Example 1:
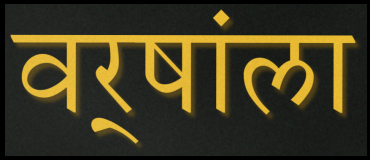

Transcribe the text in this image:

वर्षांला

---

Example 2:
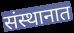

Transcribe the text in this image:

संस्थानात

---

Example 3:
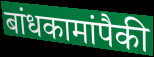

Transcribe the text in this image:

बांधकामांपैकी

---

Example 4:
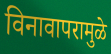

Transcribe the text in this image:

विनावापरामुळे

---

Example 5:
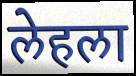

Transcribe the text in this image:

लेहला